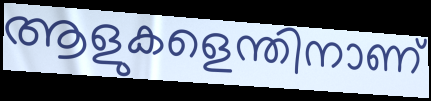
ആളുകളെന്തിനാണ്